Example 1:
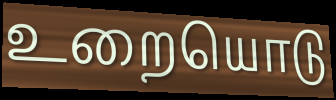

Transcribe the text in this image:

உறையொடு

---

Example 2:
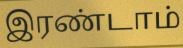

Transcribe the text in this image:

இரண்டாம்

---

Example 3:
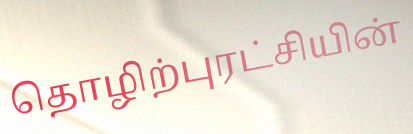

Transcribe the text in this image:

தொழிற்புரட்சியின்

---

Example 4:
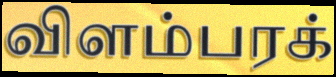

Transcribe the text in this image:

விளம்பரக்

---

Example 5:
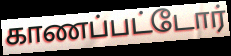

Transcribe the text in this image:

காணப்பட்டோர்